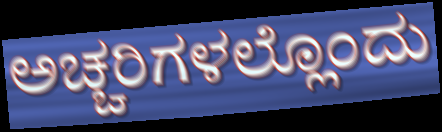
ಅಚ್ಚರಿಗಳಲ್ಲೊಂದು